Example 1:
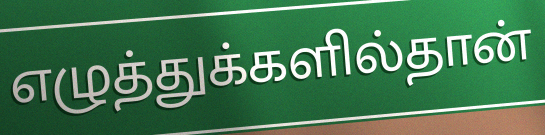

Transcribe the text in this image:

எழுத்துக்களில்தான்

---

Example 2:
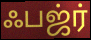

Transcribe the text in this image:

ஃபஜ்ர்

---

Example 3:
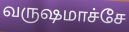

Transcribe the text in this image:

வருஷமாச்சே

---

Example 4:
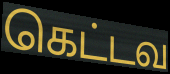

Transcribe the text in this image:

கெட்டவ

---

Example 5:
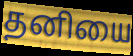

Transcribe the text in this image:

தனியை